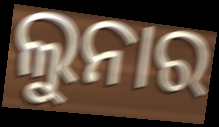
ଲୁନାର